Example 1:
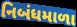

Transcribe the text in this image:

નિબંધમાળા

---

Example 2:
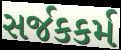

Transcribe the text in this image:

સર્જકકર્મ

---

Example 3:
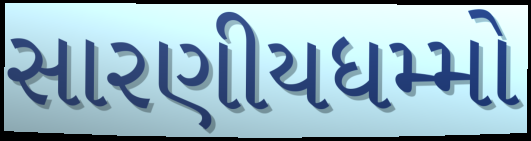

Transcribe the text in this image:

સારણીયધમ્મો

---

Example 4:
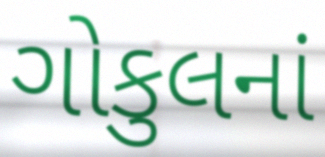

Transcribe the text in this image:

ગોકુલનાં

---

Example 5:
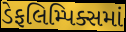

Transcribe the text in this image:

ડેફલિમ્પિક્સમાં